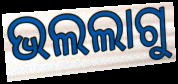
ଭଲଲାଗୁ